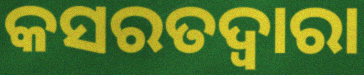
କସରତଦ୍ୱାରା